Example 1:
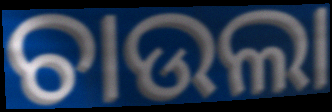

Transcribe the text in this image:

ଚାଉଲା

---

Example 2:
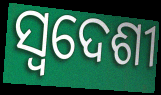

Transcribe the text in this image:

ସ୍ଵଦେଶୀ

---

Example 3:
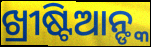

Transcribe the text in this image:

ଖ୍ରୀଷ୍ଟିଆନ୍ଙ୍କ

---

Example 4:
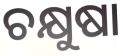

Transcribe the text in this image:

ଚକ୍ଷୁଷା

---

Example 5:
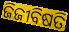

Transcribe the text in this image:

ଜିଜୀବିଷତି